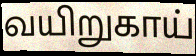
வயிறுகாய்